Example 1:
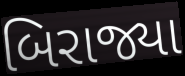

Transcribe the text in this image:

બિરાજ્યા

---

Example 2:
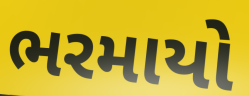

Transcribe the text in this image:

ભરમાયો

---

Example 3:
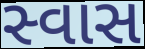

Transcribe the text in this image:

સ્વાસ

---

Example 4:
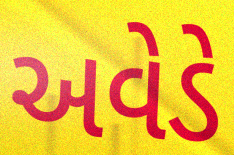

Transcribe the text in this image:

અવેડે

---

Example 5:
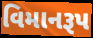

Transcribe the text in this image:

વિમાનરૂપ